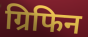
ग्रिफिन